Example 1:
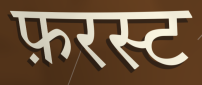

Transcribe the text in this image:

फ़रस्ट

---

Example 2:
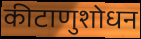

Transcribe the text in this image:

कीटाणुशोधन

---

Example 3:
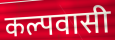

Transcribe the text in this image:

कल्पवासी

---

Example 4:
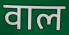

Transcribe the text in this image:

वाल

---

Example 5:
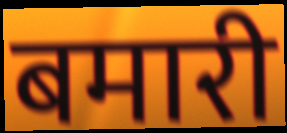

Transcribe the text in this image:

बमारी